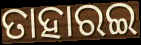
ତାହାରଇ